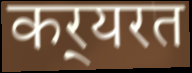
कर्यरत